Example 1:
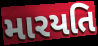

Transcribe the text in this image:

મારયતિ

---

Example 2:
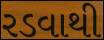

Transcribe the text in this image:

રડવાથી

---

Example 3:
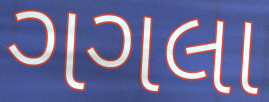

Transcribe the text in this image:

ગગલા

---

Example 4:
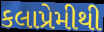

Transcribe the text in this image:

કલાપ્રેમીથી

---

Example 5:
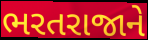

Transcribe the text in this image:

ભરતરાજાને